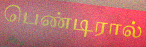
பெண்டிரால்